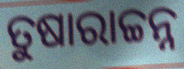
ତୁଷାରାଚ୍ଚନ୍ନ